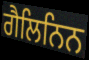
ਗੈਲਿਨਿਨ